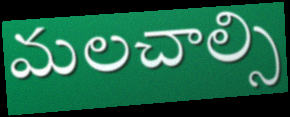
మలచాల్సి